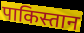
पाकिस्तान